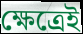
ক্ষেত্রেই